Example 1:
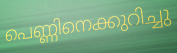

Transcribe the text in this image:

പെണ്ണിനെക്കുറിച്ചു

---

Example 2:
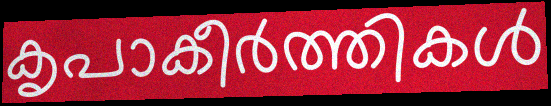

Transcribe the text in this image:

കൃപാകീർത്തികൾ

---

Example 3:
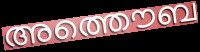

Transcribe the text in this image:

അത്തൌബ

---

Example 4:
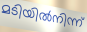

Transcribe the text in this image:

മടിയിൽനിന്ന്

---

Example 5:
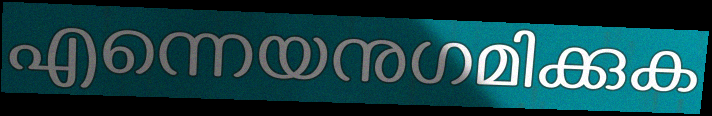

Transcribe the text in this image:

എന്നെയനുഗമിക്കുക